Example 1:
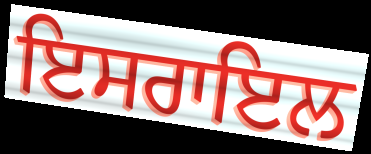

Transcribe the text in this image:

ਇਸਰਾਇਲ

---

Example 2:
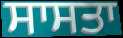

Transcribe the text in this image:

ਸਾਸਤਾ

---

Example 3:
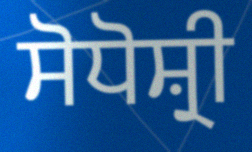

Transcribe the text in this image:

ਸੋਧੋਸ਼੍ਰੀ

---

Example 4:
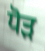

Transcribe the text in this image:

ਧੋੜ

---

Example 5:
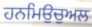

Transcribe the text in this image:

ਹਨਮਿਉਚੁਅਲ